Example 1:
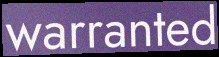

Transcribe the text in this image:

warranted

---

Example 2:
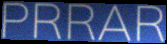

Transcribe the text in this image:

PRRAR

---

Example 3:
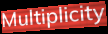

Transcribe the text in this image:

Multiplicity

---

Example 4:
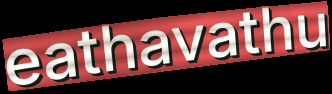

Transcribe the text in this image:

eathavathu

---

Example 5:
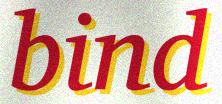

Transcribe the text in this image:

bind